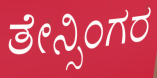
ತೇನ್ಸಿಂಗರ